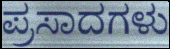
ಪ್ರಸಾದಗಳು